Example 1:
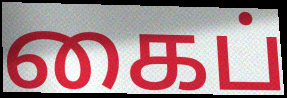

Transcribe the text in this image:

கைப்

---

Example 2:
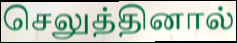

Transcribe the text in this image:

செலுத்தினால்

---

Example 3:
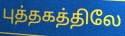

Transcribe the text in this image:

புத்தகத்திலே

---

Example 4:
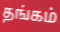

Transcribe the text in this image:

தங்கம்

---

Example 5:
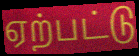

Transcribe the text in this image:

ஏற்பட்டு